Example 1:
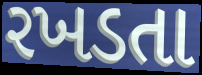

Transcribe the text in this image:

રખડતા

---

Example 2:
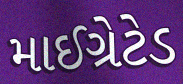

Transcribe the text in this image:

માઈગ્રેટેડ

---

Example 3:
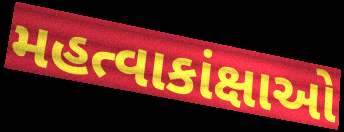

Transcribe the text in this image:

મહત્વાકાંક્ષાઓ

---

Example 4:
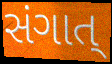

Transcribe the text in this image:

સંગાત્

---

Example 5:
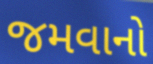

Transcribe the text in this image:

જમવાનો